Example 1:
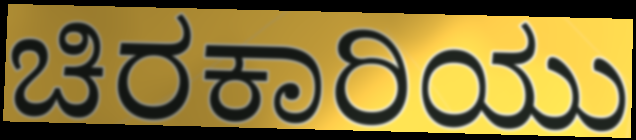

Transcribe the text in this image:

ಚಿರಕಾರಿಯು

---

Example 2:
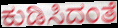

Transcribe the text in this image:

ಕುಡಿಸಿದಂತೆ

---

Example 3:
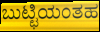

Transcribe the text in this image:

ಬುಟ್ಟಿಯಂತಹ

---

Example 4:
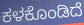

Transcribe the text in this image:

ಕಳಕೊಂಡಿದೆ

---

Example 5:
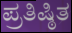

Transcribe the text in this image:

ಪ್ರತಿಷ್ಠಿತ